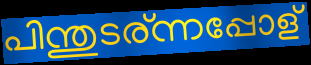
പിന്തുടര്ന്നപ്പോള്